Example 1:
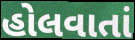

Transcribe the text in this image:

હોલવાતાં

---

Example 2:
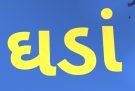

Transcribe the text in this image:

ઘડાં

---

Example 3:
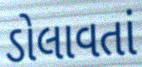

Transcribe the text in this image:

ડોલાવતાં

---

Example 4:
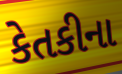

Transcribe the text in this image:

કેતકીના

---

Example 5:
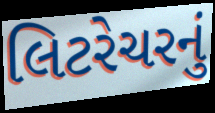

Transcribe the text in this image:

લિટરેચરનું